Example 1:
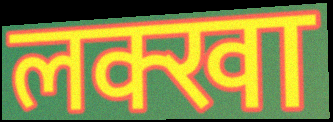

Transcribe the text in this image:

लक्खा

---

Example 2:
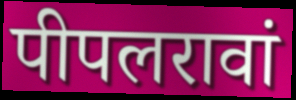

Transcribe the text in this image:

पीपलरावां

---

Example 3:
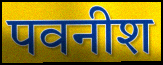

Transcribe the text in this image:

पवनीश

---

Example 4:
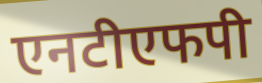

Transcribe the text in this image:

एनटीएफपी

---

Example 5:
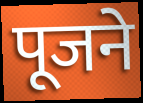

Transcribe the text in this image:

पूजने